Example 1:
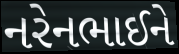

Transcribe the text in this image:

નરેનભાઈને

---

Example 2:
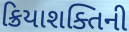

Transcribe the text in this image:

ક્રિયાશક્તિની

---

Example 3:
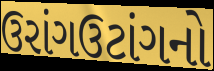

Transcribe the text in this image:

ઉરાંગઉટાંગનો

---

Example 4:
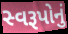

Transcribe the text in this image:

સ્વરૂપોનું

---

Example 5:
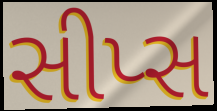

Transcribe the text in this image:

સીપ્સ